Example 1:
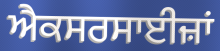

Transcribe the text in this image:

ਐਕਸਰਸਾਈਜ਼ਾਂ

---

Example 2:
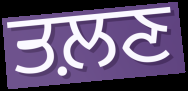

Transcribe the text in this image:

ਤਲ਼ਣ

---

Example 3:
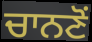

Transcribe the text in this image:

ਚਾਨਣੋਂ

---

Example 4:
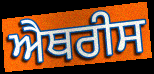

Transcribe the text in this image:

ਐਥਰੀਸ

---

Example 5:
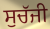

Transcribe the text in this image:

ਸੁਚੱਜੀ